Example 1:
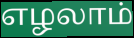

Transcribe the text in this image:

எழலாம்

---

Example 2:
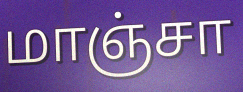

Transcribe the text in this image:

மாஞ்சா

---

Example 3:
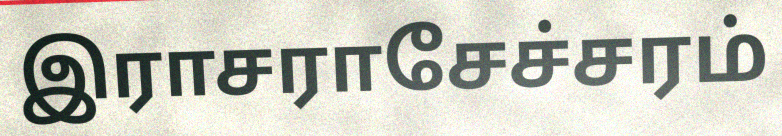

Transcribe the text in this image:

இராசராசேச்சரம்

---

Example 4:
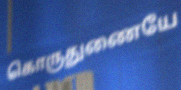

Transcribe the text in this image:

கொருதுணையே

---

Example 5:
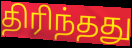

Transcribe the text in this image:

திரிந்தது